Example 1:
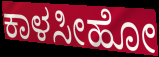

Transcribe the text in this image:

ಕಾಳಸೀಹೋ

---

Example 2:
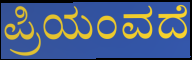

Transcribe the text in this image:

ಪ್ರಿಯಂವದೆ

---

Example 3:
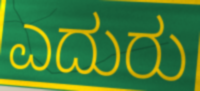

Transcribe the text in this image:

ಎದುರು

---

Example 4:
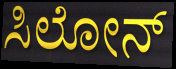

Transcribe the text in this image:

ಸಿಲೋನ್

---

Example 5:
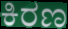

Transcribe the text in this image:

ಕಿರಣ